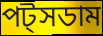
পট্‌সডাম